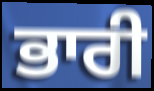
ਭਾਰੀ